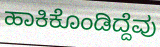
ಹಾಕಿಕೊಂಡಿದ್ದೆವು